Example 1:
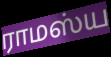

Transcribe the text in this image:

ராமஸ்ய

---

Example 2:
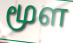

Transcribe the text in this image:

மூள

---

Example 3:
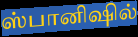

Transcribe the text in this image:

ஸ்பானிஷில்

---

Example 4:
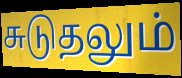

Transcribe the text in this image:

சுடுதலும்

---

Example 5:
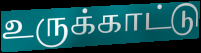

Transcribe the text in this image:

உருக்காட்டு